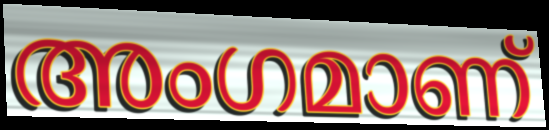
അംഗമാണ്